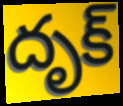
దృక్